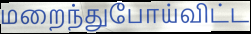
மறைந்துபோய்விட்ட